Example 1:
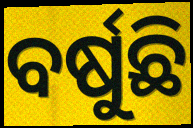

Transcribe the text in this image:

ବର୍ଷୁଛି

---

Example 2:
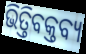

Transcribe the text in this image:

ଭିତ୍ତିବକ୍ତବ୍ୟ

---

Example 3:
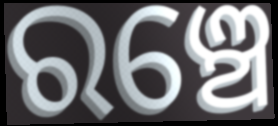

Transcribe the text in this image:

ରଞ୍ଚେ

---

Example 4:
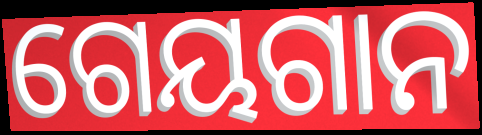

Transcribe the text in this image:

ଗେୟଗାନ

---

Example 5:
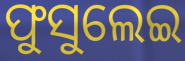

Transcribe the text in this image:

ଫୁସୁଲେଇ